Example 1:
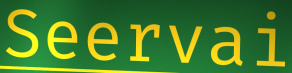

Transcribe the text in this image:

Seervai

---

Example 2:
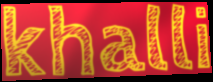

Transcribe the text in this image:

khalli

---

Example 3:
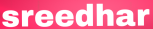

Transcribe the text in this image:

sreedhar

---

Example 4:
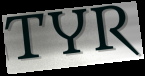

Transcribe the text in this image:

TYR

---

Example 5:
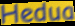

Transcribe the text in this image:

Hedua